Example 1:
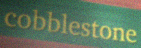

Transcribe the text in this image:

cobblestone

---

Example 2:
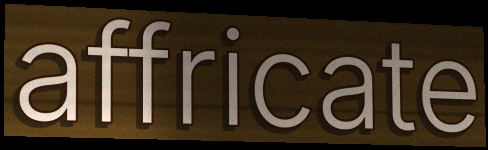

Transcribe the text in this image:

affricate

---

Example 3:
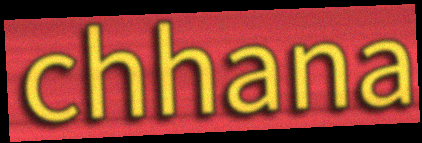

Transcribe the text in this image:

chhana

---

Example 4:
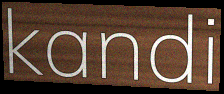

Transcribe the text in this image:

kandi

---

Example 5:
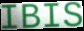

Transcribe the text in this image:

IBIS